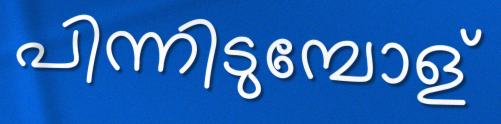
പിന്നിടുമ്പോള്